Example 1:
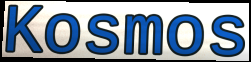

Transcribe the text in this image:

Kosmos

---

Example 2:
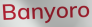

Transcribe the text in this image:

Banyoro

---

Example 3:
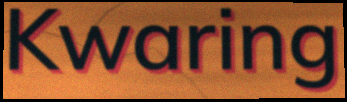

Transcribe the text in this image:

Kwaring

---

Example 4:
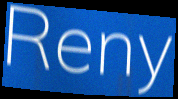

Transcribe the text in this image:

Reny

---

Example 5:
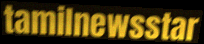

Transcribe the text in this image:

tamilnewsstar